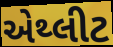
એથ્લીટ